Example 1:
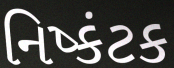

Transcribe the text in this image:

નિષ્કંટક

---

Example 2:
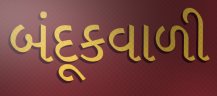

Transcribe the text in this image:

બંદૂકવાળી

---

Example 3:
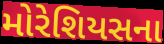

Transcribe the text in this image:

મોરેશિયસના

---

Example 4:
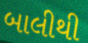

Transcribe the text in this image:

બાલીથી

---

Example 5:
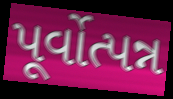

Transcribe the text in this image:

પૂર્વોત્પન્ન